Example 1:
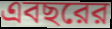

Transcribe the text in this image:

এবছরের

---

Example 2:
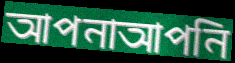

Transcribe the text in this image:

আপনাআপনি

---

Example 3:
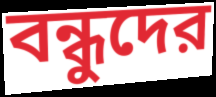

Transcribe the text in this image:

বন্ধুদের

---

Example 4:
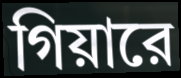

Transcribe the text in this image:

গিয়ারে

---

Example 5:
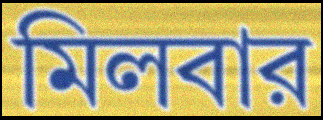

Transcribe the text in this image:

মিলবার